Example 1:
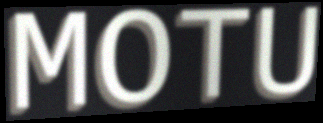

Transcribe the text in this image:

MOTU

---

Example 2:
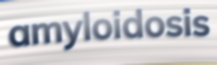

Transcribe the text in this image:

amyloidosis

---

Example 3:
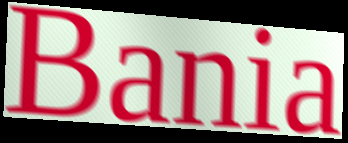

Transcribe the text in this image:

Bania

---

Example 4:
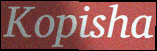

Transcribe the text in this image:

Kopisha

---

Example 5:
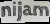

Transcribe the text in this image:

nijam